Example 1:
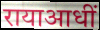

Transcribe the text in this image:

रायाआधीं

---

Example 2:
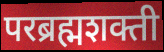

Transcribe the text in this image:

परब्रह्मशक्ती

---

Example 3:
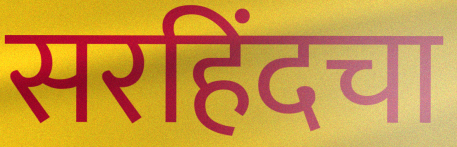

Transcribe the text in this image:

सरहिंदचा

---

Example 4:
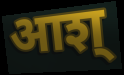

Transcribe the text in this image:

आश्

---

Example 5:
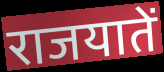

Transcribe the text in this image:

राजयातें